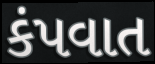
કંપવાત